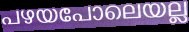
പഴയപോലെയല്ല